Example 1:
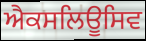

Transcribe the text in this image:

ਐਕਸਲਿਊਸਿਵ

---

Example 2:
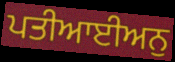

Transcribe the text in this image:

ਪਤੀਆਈਅਨੁ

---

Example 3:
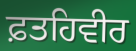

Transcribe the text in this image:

ਫ਼ਤਹਿਵੀਰ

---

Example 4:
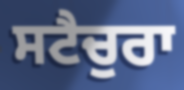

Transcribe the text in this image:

ਸਟੈਚੁਰਾ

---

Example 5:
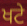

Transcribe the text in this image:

ਖਟੇ